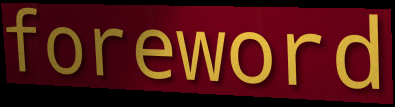
foreword